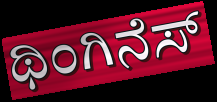
ಥಿಂಗಿನೆಸ್